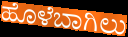
ಹೊಳೆಬಾಗಿಲು